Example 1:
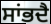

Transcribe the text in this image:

ਸਾਂਭਦੈ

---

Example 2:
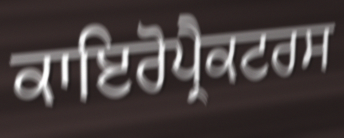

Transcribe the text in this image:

ਕਾਇਰੋਪ੍ਰੈਕਟਰਸ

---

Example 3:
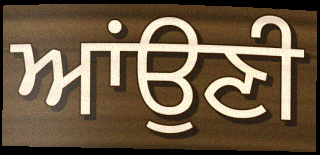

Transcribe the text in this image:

ਆਂਉਣੀ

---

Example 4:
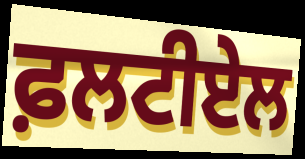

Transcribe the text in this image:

ਫ਼ਲਟੀਏਲ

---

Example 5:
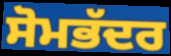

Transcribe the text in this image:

ਸੋਮਭੱਦਰ